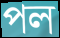
পল